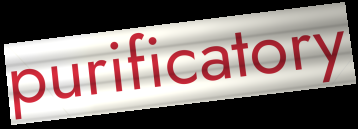
purificatory